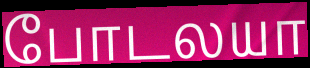
போடலயா